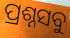
ପ୍ରଶ୍ନସବୁ